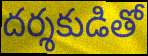
దర్శకుడితో